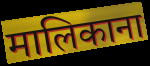
मालिकाना